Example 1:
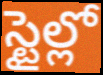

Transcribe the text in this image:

స్టైల్లో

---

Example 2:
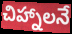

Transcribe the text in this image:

చిహ్నాలనే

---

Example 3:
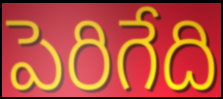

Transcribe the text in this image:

పెరిగేది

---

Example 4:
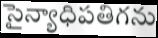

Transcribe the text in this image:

సైన్యాధిపతిగను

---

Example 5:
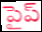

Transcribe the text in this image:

పైప్